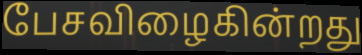
பேசவிழைகின்றது